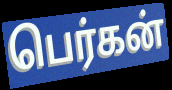
பெர்கன்